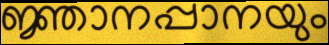
ജ്ഞാനപ്പാനയും